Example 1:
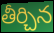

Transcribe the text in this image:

తీర్చిన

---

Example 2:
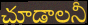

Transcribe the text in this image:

చూడాలనీ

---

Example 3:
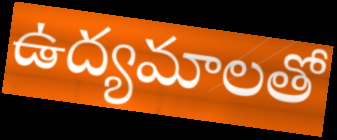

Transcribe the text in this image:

ఉద్యమాలతో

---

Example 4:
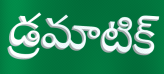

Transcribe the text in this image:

డ్రమాటిక్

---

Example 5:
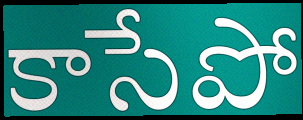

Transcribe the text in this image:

కాసేపో